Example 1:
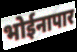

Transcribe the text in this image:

भोईनापार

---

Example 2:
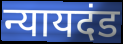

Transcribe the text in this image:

न्यायदंड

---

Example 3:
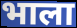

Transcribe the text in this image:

भाला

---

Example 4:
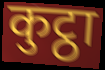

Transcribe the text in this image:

कुट्ठा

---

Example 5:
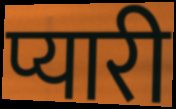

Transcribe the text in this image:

प्यारी